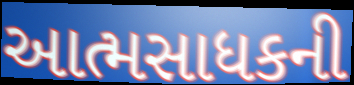
આત્મસાધકની